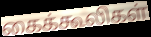
கைக்கூலிகள்